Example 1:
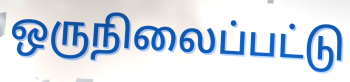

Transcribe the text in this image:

ஒருநிலைப்பட்டு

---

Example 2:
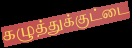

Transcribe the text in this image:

கழுத்துக்குட்டை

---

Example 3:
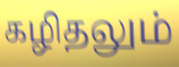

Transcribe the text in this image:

கழிதலும்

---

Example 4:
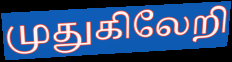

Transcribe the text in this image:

முதுகிலேறி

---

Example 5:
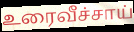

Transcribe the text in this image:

உரைவீச்சாய்